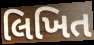
લિખિત